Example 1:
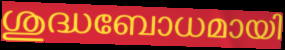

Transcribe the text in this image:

ശുദ്ധബോധമായി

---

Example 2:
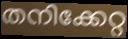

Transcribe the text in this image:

തനിക്കേറ്റ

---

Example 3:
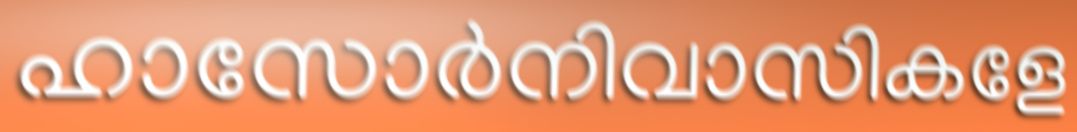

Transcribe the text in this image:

ഹാസോർനിവാസികളേ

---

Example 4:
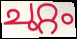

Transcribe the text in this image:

ചുറ്റം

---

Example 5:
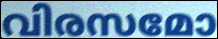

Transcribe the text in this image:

വിരസമോ